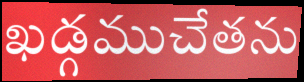
ఖడ్గముచేతను